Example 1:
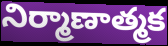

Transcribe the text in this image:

నిర్మాణాత్మక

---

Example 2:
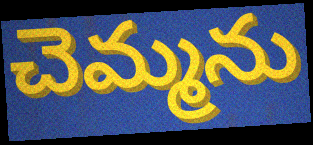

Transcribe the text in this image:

చెమ్మను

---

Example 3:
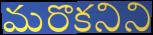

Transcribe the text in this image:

మరొకనిని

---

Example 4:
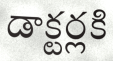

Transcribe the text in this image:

డాక్టర్లకి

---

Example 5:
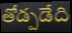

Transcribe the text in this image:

తోడ్పడేది